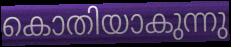
കൊതിയാകുന്നു